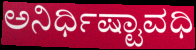
ಅನಿರ್ಧಿಷ್ಟಾವಧಿ